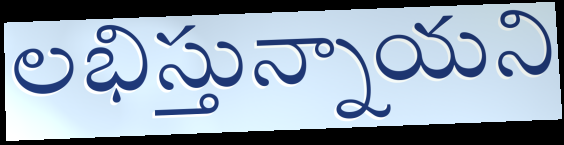
లభిస్తున్నాయని